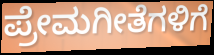
ಪ್ರೇಮಗೀತೆಗಳಿಗೆ